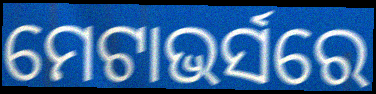
ମେଟାଭର୍ସରେ